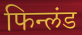
फिन्लंड